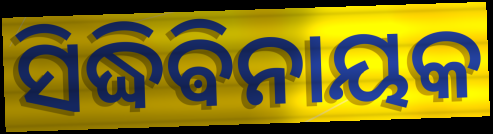
ସିଦ୍ଧିଵିନାୟକ